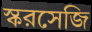
স্করসেজি